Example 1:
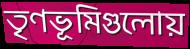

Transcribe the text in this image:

তৃণভূমিগুলোয়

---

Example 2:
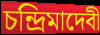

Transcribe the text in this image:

চন্দ্রিমাদেবী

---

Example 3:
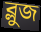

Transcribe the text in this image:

ব্লুজ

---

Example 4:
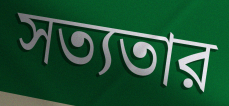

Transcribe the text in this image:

সত্যতার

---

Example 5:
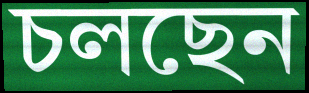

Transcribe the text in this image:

চলছেন